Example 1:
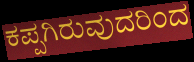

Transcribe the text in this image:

ಕಪ್ಪಗಿರುವುದರಿಂದ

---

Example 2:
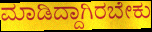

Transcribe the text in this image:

ಮಾಡಿದ್ದಾಗಿರಬೇಕು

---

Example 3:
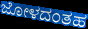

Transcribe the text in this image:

ಜೋಳದಂತಹ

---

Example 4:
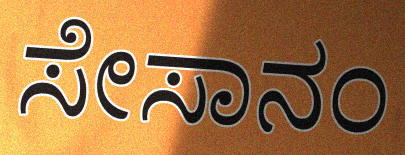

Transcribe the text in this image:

ಸೇಸಾನಂ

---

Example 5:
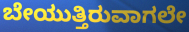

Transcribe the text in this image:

ಬೇಯುತ್ತಿರುವಾಗಲೇ